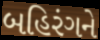
બહિરંગને